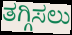
ತಗ್ಗಿಸಲು